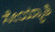
ಸೇಯ್ಯಾತಿ